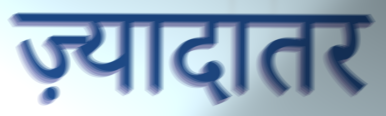
ज़्यादातर